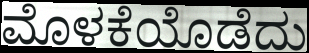
ಮೊಳಕೆಯೊಡೆದು